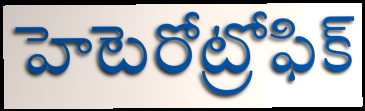
హెటెరోట్రోఫిక్